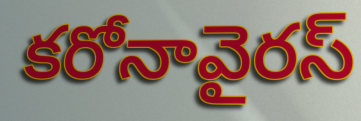
కరోనావైరస్